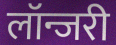
लॉन्जरी